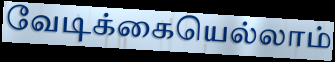
வேடிக்கையெல்லாம்